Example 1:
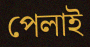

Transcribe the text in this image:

পেলাই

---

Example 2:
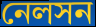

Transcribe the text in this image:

নেলসন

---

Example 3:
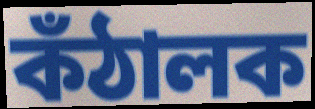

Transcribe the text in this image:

কঁঠালক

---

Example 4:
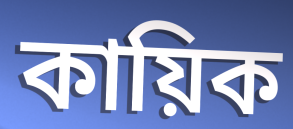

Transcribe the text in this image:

কায়িক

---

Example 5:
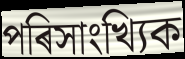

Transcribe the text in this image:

পৰিসাংখ্যিক